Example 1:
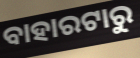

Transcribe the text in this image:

ବାହାରଟାରୁ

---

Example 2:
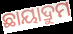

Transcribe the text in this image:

ଛାୟାଦ୍ରୁମ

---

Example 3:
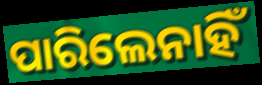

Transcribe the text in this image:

ପାରିଲେନାହିଁ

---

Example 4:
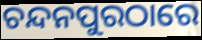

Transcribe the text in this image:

ଚନ୍ଦନପୁରଠାରେ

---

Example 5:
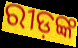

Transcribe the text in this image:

ରୀଡ଼ଙ୍କ